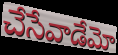
చేసేవాడేమో